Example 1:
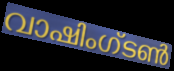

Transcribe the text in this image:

വാഷിംഗ്ടൺ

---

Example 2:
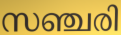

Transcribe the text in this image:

സഞ്ചരി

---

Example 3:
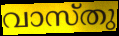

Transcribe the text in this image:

വാസ്തു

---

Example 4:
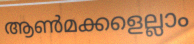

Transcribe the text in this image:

ആൺമക്കളെല്ലാം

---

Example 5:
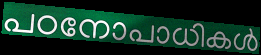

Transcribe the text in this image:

പഠനോപാധികൾ